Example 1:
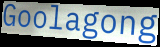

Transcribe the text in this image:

Goolagong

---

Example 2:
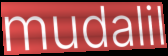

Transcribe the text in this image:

mudalil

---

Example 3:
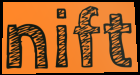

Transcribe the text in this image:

nift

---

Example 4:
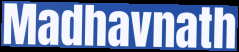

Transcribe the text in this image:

Madhavnath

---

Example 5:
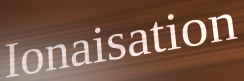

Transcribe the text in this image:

Ionaisation